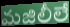
మజిలీలే